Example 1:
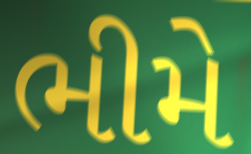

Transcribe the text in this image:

ભીમે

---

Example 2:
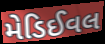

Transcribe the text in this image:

મેડિઈવલ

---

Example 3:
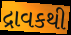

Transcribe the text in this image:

દ્રાવકથી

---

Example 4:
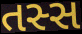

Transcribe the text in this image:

તસ્સ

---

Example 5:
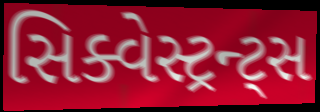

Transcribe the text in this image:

સિક્વેસ્ટ્રન્ટ્સ